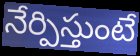
నేర్పిస్తుంటే